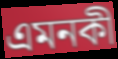
এমনকী